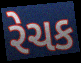
રેચક